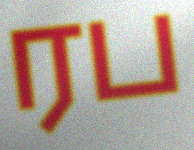
ரப